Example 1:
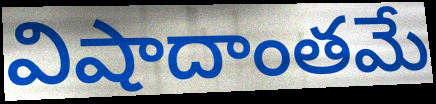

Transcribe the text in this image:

విషాదాంతమే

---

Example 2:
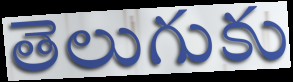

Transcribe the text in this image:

తెలుగుకు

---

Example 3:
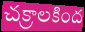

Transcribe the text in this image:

చక్రాలకింద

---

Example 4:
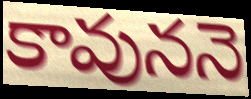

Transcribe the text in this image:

కావుననె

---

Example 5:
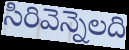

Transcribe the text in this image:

సిరివెన్నెలది